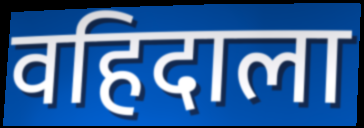
वहिदाला